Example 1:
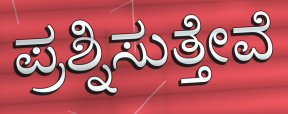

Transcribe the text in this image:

ಪ್ರಶ್ನಿಸುತ್ತೇವೆ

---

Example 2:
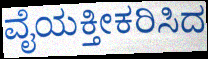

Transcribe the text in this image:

ವೈಯಕ್ತೀಕರಿಸಿದ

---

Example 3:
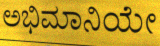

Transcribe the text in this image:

ಅಭಿಮಾನಿಯೇ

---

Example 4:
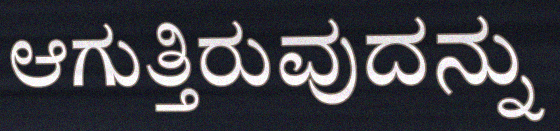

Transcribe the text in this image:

ಆಗುತ್ತಿರುವುದನ್ನು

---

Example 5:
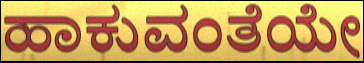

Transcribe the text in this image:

ಹಾಕುವಂತೆಯೇ